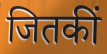
जितकीं